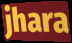
jhara